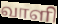
வாளி